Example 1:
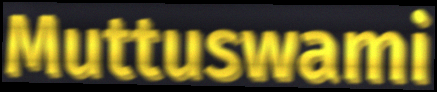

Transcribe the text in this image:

Muttuswami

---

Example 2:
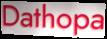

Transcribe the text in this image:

Dathopa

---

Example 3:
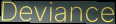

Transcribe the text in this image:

Deviance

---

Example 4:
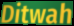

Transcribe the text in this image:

Ditwah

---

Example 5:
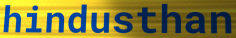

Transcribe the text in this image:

hindusthan